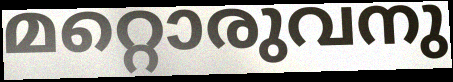
മറ്റൊരുവനു